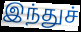
இந்துச்